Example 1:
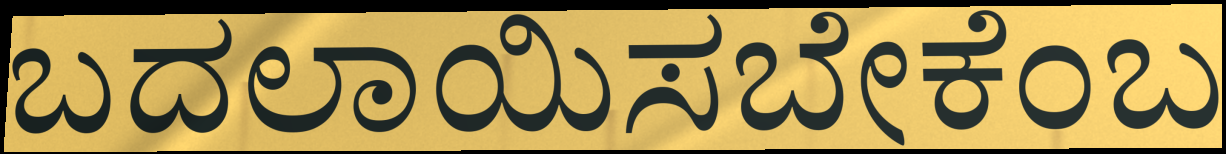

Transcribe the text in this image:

ಬದಲಾಯಿಸಬೇಕೆಂಬ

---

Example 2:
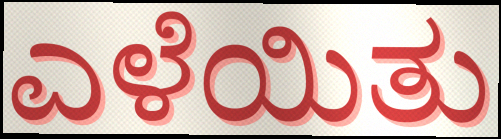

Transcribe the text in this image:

ಎಳೆಯಿತು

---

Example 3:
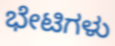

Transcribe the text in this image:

ಭೇಟಿಗಳು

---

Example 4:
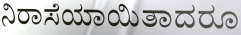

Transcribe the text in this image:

ನಿರಾಸೆಯಾಯಿತಾದರೂ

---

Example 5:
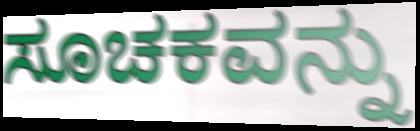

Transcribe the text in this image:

ಸೂಚಕವನ್ನು